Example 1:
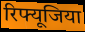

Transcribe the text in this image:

रिफ्यूजिया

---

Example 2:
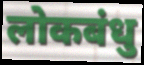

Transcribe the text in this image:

लोकबंधु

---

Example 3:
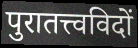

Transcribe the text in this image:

पुरातत्त्वविदों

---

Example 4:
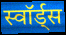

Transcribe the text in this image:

स्‍वॉर्ड्स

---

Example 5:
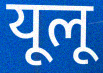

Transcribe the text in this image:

यूलू